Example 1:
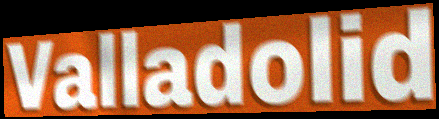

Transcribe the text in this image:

Valladolid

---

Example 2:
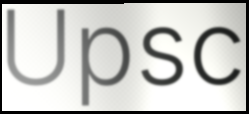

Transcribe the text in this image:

Upsc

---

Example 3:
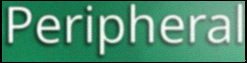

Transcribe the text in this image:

Peripheral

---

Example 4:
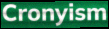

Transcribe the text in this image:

Cronyism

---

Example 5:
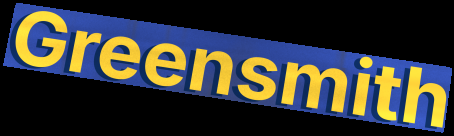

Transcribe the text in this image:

Greensmith